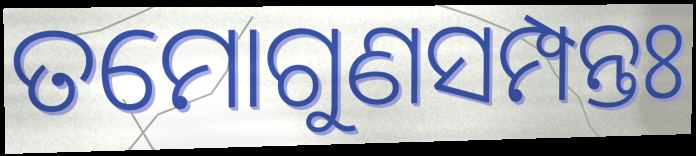
ତମୋଗୁଣସମ୍ପନ୍ତଃ